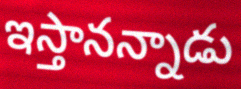
ఇస్తానన్నాడు